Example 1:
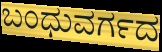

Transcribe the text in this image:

ಬಂಧುವರ್ಗದ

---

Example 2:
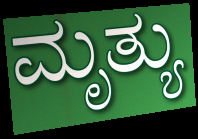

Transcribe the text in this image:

ಮೃತ್ಯು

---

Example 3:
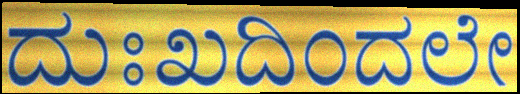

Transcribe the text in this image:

ದುಃಖದಿಂದಲೇ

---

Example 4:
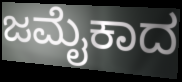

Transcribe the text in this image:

ಜಮೈಕಾದ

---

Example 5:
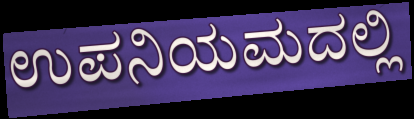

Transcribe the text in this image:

ಉಪನಿಯಮದಲ್ಲಿ